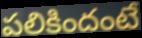
పలికిందంటే